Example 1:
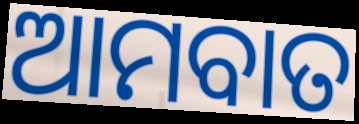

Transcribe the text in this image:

ଆମବାତ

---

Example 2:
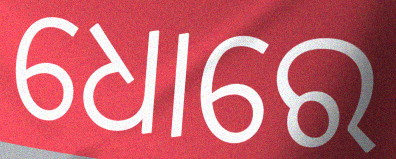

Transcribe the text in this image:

ଧୋରେ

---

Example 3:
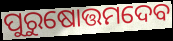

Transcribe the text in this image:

ପୁରୁଷୋତ୍ତମଦେବ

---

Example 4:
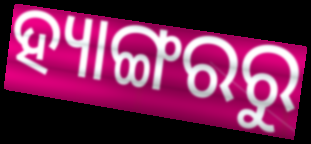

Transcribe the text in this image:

ହ୍ୟାଙ୍ଗରରୁ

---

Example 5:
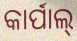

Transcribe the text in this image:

କାର୍ପାଲ୍